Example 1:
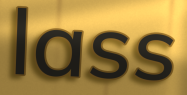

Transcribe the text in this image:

lass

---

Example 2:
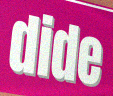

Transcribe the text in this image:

dide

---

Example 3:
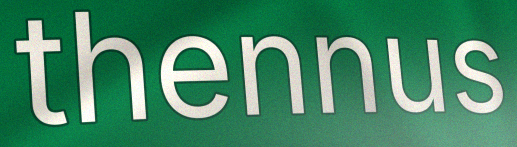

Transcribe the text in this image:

thennus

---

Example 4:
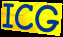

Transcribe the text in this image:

ICG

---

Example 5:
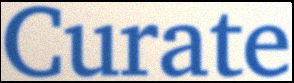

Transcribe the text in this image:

Curate